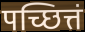
पच्छित्तं